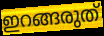
ഇറങ്ങരുത്